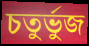
চতুর্ভুজ